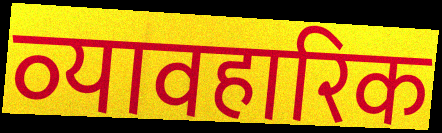
व्‍यावहारिक